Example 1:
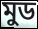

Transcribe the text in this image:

মুড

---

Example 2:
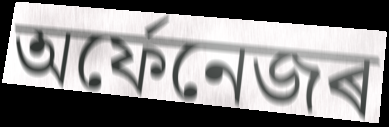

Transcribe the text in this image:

অৰ্ফেনেজৰ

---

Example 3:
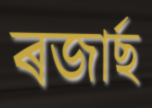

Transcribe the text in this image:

ৰজাৰ্ছ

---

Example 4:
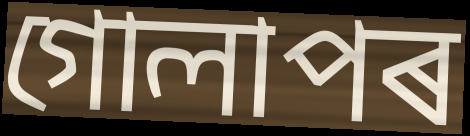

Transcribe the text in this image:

গোলাপৰ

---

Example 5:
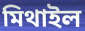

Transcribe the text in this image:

মিথাইল